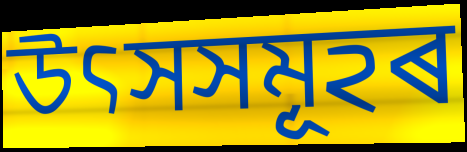
উৎসসমূহৰ